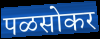
पळसोकर